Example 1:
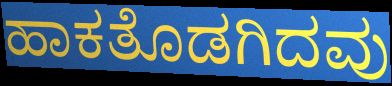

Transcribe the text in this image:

ಹಾಕತೊಡಗಿದವು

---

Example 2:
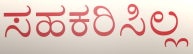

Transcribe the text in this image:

ಸಹಕರಿಸಿಲ್ಲ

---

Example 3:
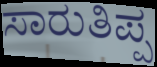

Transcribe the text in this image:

ಸಾರುತಿಪ್ಪ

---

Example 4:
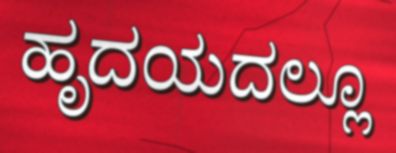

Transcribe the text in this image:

ಹೃದಯದಲ್ಲೂ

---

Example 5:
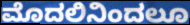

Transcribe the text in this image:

ಮೊದಲಿನಿಂದಲೂ